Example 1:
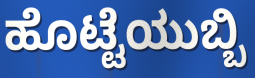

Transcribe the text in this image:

ಹೊಟ್ಟೆಯುಬ್ಬಿ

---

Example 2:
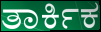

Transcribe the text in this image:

ತಾರ್ಕಿಕ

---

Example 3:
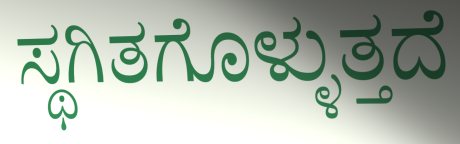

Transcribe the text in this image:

ಸ್ಥಗಿತಗೊಳ್ಳುತ್ತದೆ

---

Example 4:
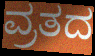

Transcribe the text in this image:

ವ್ರತದ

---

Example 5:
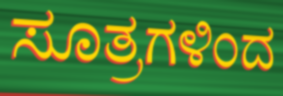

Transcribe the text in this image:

ಸೂತ್ರಗಳಿಂದ